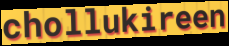
chollukireen